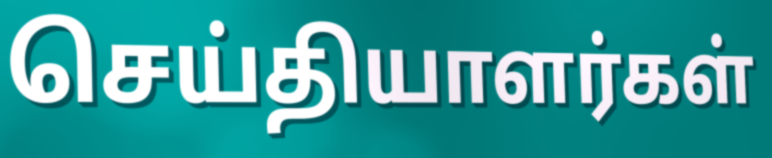
செய்தியாளர்கள்